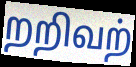
றறிவற்